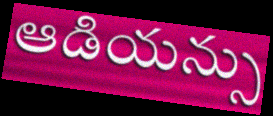
ఆడియన్సు